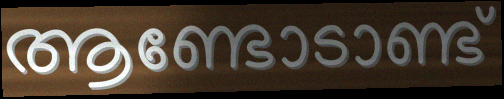
ആണ്ടോടാണ്ട്